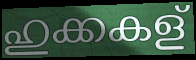
ഹുക്കകള്